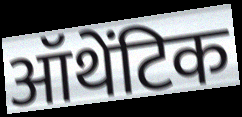
ऑथेंटिक